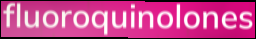
fluoroquinolones